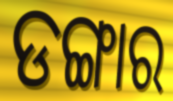
ଡଙ୍ଗାର